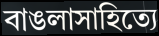
বাঙলাসাহিত্যে